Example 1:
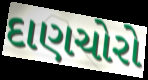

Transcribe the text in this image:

દાણચોરો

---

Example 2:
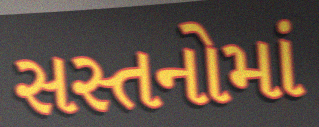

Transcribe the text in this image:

સસ્તનોમાં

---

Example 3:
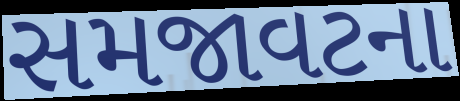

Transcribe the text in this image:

સમજાવટના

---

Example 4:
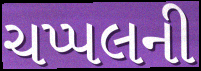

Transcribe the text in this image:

ચપ્પલની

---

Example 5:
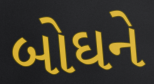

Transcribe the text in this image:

બોઘને